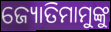
ଜ୍ୟୋତିମାମୁଙ୍କୁ